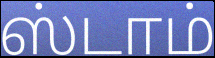
ஸ்டாம்